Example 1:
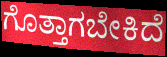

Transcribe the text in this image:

ಗೊತ್ತಾಗಬೇಕಿದೆ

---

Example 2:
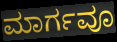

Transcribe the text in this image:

ಮಾರ್ಗವೂ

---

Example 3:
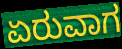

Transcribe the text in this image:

ಏರುವಾಗ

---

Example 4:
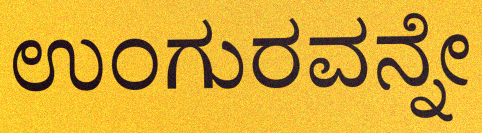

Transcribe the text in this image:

ಉಂಗುರವನ್ನೇ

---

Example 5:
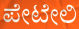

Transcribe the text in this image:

ಪೇಟೇಲಿ